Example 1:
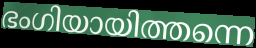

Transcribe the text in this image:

ഭംഗിയായിത്തന്നെ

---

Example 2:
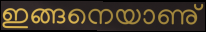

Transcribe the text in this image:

ഇങ്ങനെയാണു്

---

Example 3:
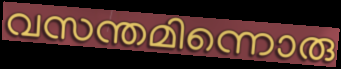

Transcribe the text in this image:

വസന്തമിന്നൊരു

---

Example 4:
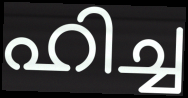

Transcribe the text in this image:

ഹിച്ച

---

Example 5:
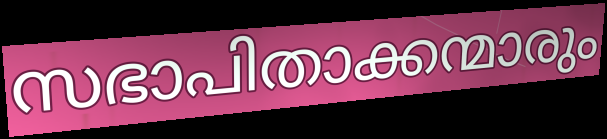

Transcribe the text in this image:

സഭാപിതാക്കന്മാരും